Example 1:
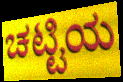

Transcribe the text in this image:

ಚಟ್ಟಿಯ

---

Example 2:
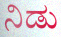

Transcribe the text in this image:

ನಿಡು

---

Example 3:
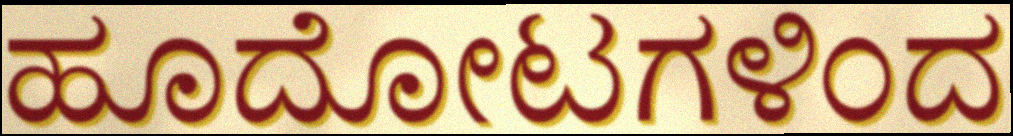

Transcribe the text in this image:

ಹೂದೋಟಗಳಿಂದ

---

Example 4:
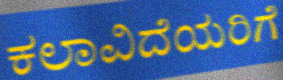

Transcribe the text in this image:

ಕಲಾವಿದೆಯರಿಗೆ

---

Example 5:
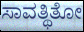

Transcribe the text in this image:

ಸಾವತ್ಥಿತೋ